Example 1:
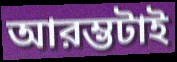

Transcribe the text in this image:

আরম্ভটাই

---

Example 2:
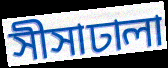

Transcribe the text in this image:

সীসাঢালা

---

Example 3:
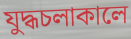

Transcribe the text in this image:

যুদ্ধচলাকালে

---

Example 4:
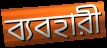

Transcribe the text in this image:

ব্যবহারী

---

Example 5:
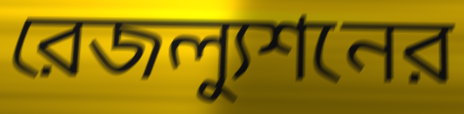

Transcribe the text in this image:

রেজল্যুশনের